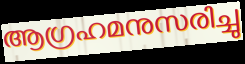
ആഗ്രഹമനുസരിച്ചു